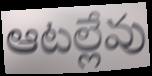
ఆటల్లేవు